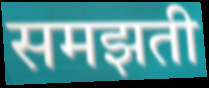
समझती